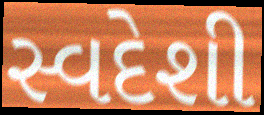
સ્વદેશી